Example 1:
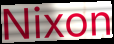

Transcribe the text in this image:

Nixon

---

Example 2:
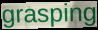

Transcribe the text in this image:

grasping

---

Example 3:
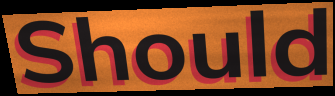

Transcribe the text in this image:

Should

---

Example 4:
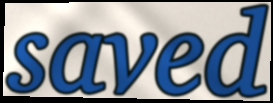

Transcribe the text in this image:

saved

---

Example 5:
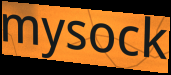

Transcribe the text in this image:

mysock